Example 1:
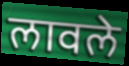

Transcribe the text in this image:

लावले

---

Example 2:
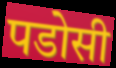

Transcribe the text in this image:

पडोसी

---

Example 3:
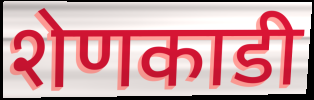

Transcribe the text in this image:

शेणकाडी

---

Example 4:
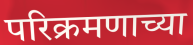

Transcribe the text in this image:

परिक्रमणाच्या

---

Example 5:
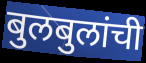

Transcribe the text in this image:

बुलबुलांची